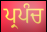
ਪ੍ਰਪੰਚ